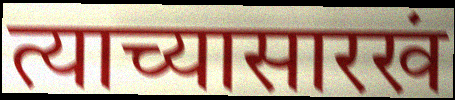
त्याच्यासारखं